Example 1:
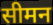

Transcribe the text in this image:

सीमन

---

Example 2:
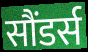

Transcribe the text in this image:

सौंडर्स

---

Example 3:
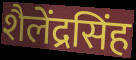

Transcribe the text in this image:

शैलेंद्रसिंह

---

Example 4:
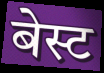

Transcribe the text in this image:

बेस्ट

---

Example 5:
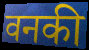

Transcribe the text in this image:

वनकी